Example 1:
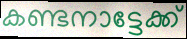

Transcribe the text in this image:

കണ്ടനാട്ടേക്ക്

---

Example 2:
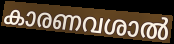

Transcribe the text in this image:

കാരണവശാൽ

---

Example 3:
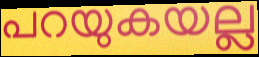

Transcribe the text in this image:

പറയുകയല്ല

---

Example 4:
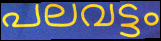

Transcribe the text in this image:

പലവട്ടം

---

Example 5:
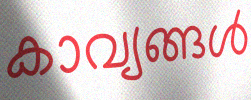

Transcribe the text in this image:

കാവ്യങ്ങൾ